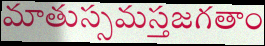
మాతుస్సమస్తజగతాం